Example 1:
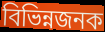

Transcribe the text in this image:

বিভিন্নজনক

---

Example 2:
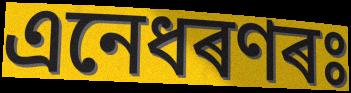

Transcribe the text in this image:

এনেধৰণৰঃ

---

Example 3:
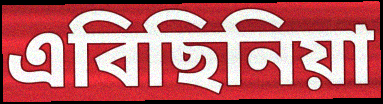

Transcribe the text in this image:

এবিছিনিয়া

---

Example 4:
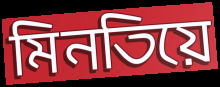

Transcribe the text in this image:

মিনতিয়ে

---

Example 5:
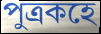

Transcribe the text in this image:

পুত্ৰকহে